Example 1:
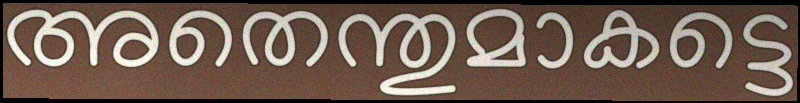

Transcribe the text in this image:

അതെന്തുമാകട്ടെ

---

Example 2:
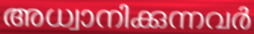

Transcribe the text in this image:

അധ്വാനിക്കുന്നവർ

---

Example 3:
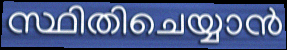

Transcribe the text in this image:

സ്ഥിതിചെയ്യാൻ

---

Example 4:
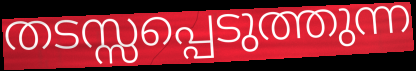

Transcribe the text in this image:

തടസ്സപ്പെടുത്തുന്ന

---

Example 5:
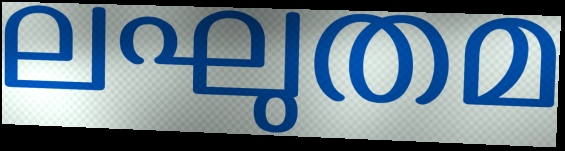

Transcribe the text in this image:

ലഘുതമ